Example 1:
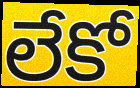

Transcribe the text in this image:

లేకో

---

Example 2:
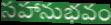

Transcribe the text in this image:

సహానుభవం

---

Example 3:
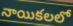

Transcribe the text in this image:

నాయికలలో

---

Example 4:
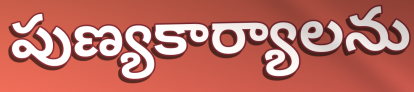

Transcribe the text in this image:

పుణ్యకార్యాలను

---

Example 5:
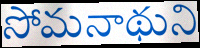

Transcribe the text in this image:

సోమనాథుని